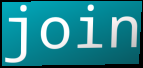
join